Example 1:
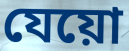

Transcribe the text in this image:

যেয়ো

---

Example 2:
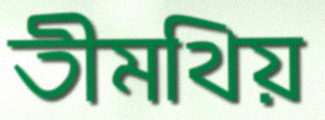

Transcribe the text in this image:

তীমথিয়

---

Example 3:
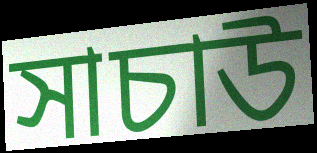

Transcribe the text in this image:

সাচাউ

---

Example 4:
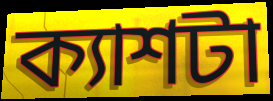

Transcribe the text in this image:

ক্যাশটা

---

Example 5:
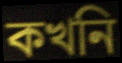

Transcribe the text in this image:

কখনি